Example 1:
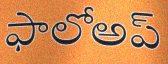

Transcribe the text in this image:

ఫాలోఅప్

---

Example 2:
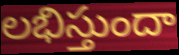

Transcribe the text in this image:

లభిస్తుందా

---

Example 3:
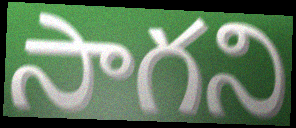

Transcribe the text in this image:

సాగని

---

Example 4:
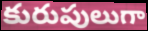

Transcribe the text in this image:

కురుపులుగా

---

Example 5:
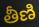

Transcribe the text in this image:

తీణి